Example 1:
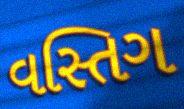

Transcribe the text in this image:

વસ્તિગ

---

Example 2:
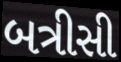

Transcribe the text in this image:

બત્રીસી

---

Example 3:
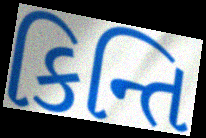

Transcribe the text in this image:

કિન્તિ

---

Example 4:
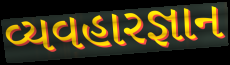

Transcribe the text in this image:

વ્યવહારજ્ઞાન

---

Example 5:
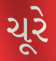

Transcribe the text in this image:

ચૂરે